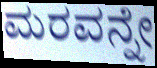
ಮರವನ್ನೇ